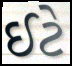
ઈટે